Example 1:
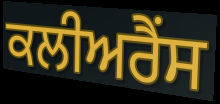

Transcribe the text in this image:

ਕਲੀਅਰੈਂਸ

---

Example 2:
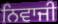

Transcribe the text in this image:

ਨਿਵਾਜੀ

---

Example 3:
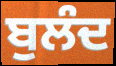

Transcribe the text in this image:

ਬੁਲੰਦ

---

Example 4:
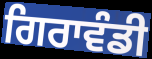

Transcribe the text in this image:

ਗਿਰਾਵੰਡੀ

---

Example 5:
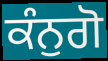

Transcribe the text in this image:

ਕੰਨੁਗੋ